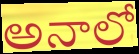
అనాలో